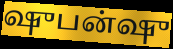
ஷுபன்ஷு